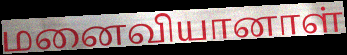
மனைவியானாள்